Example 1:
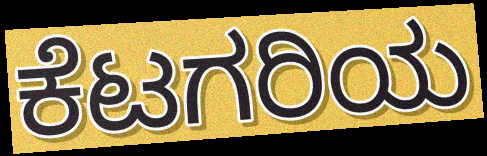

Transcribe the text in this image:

ಕೆಟಗರಿಯ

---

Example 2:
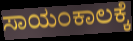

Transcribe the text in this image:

ಸಾಯಂಕಾಲಕ್ಕೆ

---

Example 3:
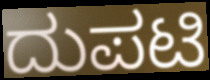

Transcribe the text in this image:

ದುಪಟಿ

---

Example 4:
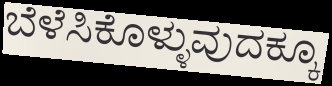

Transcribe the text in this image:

ಬೆಳೆಸಿಕೊಳ್ಳುವುದಕ್ಕೂ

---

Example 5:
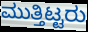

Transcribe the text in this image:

ಮುತ್ತಿಟ್ಟರು